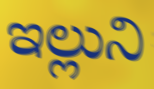
ఇల్లుని